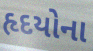
હૃદયોના